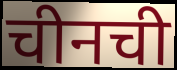
चीनची